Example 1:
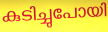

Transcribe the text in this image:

കുടിച്ചുപോയി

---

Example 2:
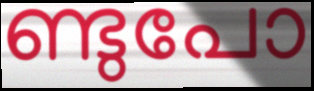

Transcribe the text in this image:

ണ്ടുപോ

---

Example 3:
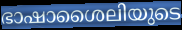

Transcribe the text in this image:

ഭാഷാശൈലിയുടെ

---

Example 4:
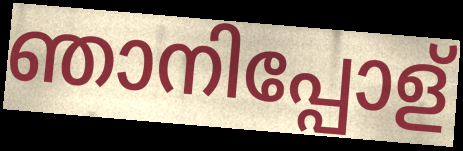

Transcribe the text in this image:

ഞാനിപ്പോള്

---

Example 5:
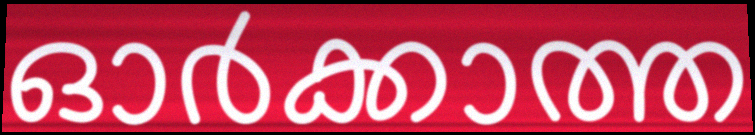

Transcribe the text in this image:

ഓർക്കാത്ത